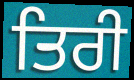
ਤਿਰੀ